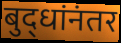
बुद्धांनंतर